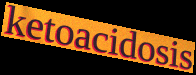
ketoacidosis